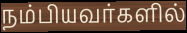
நம்பியவர்களில்